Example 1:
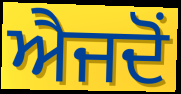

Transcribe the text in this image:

ਐਜਦੋਂ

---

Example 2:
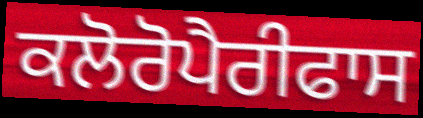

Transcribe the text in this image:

ਕਲੋਰੋਪੈਰੀਫਾਸ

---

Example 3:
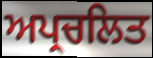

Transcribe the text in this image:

ਅਪ੍ਰਚਲਿਤ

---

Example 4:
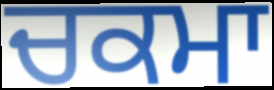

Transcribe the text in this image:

ਚਕਮਾ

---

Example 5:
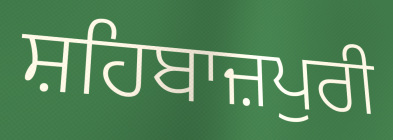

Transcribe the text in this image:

ਸ਼ਹਿਬਾਜ਼ਪੁਰੀ